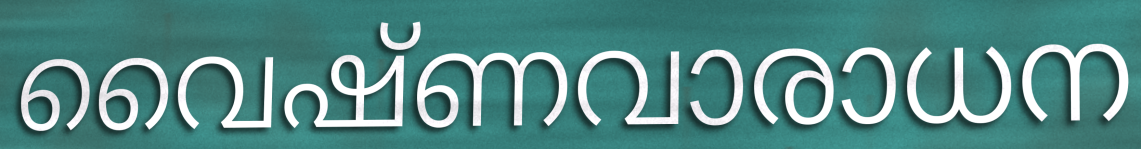
വൈഷ്ണവാരാധന